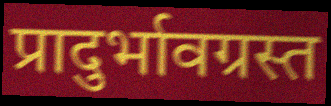
प्रादुर्भावग्रस्त